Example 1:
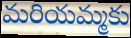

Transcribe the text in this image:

మరియమ్మకు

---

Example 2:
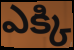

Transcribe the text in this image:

ఎక్కి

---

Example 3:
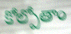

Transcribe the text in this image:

కోల్పోతాం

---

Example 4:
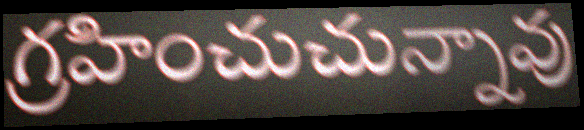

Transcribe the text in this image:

గ్రహించుచున్నావు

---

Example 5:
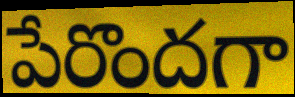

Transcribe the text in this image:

పేరొందగా